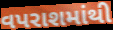
વપરાશમાંથી